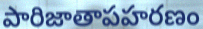
పారిజాతాపహరణం